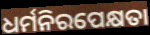
ଧର୍ମନିରପେକ୍ଷତା